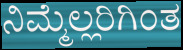
ನಿಮ್ಮೆಲ್ಲರಿಗಿಂತ